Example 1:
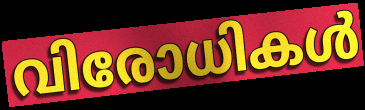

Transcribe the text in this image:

വിരോധികൾ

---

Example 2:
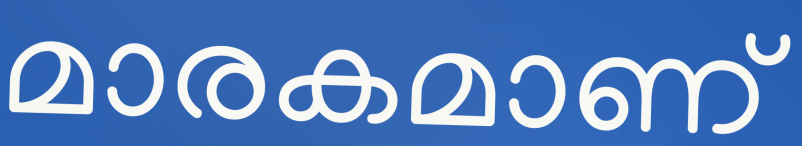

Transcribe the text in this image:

മാരകമാണ്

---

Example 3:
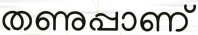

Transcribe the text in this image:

തണുപ്പാണ്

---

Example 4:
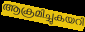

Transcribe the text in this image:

ആക്രമിച്ചുകയറി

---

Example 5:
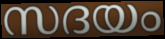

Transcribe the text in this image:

സദയം